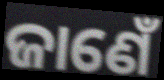
ଜାଣେଁ